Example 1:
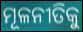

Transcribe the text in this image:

ମୂଳନୀତିକୁ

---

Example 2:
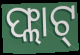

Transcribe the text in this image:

ଫ୍ଲାଟ୍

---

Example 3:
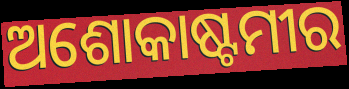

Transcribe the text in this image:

ଅଶୋକାଷ୍ଟମୀର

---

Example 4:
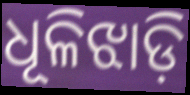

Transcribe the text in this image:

ଧୂଳିଝାଡ଼ି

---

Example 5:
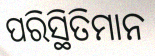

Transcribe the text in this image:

ପରିସ୍ଥିତିମାନ